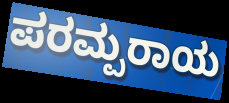
ಪರಮ್ಪರಾಯ